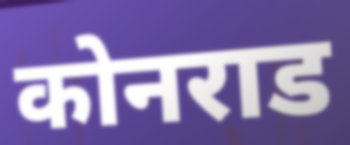
कोनराड